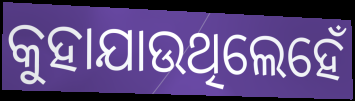
କୁହାଯାଉଥିଲେହେଁ